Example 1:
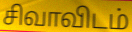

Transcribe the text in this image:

சிவாவிடம்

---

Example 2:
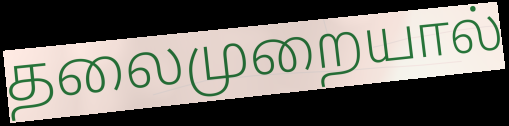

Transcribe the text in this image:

தலைமுறையால்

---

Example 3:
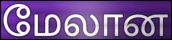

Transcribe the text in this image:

மேலான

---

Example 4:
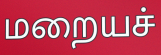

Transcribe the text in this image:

மறையச்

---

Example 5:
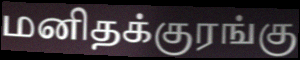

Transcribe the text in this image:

மனிதக்குரங்கு